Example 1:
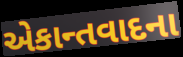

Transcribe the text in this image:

એકાન્તવાદના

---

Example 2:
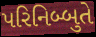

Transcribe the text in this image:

પરિનિબ્બુતે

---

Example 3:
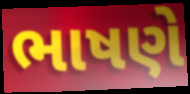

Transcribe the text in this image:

ભાષણે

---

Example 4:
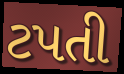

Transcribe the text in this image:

ટપતી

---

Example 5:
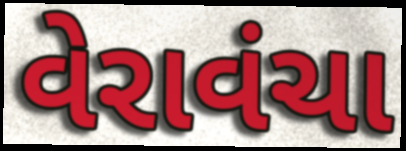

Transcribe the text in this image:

વેરાવંચા